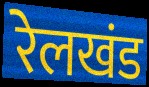
रेलखंड